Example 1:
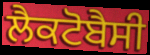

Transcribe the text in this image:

ਲੈਕਟੋਬੈਸੀ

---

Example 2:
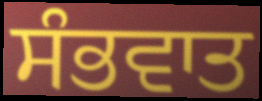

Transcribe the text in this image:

ਸੰਭਵਾਤ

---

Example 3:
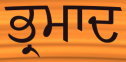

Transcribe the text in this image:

ਭ੍ਰਮਾਦ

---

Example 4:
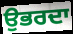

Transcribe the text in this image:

ਉਭਰਦਾ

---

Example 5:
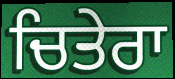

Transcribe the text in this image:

ਚਿਤੇਰਾ